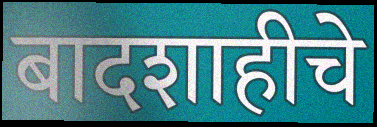
बादशाहीचे